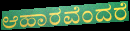
ಆಹಾರವೆಂದರೆ